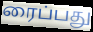
ரைப்பது